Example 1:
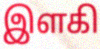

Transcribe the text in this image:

இளகி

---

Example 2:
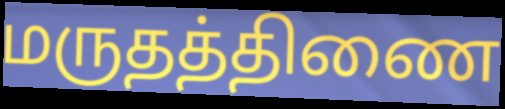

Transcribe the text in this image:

மருதத்திணை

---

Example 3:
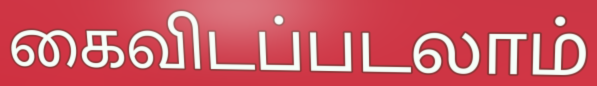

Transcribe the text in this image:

கைவிடப்படலாம்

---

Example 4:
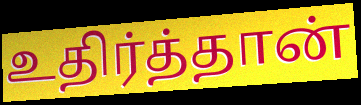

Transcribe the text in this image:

உதிர்த்தான்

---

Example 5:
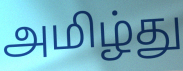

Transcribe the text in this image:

அமிழ்து